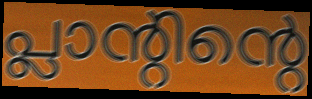
പ്ലാന്റിന്റെ